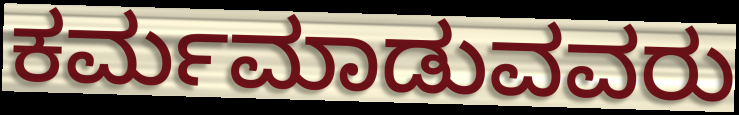
ಕರ್ಮಮಾಡುವವರು